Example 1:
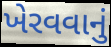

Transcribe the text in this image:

ખેરવવાનું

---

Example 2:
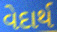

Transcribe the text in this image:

વેદાર્થ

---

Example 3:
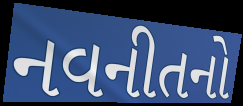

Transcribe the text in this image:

નવનીતનો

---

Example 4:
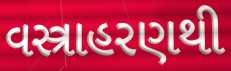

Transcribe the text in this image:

વસ્ત્રાહરણથી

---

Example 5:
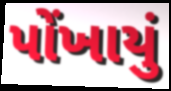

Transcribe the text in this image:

પોંખાયું